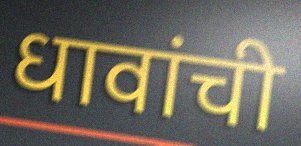
धावांची